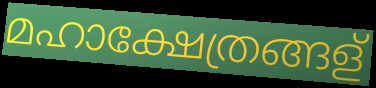
മഹാക്ഷേത്രങ്ങള്